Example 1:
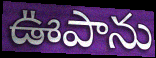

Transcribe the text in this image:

ఊపాను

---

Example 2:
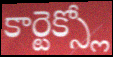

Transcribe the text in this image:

కార్టెక్స్లో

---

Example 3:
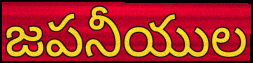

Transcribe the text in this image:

జపనీయుల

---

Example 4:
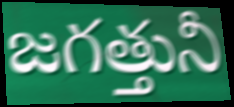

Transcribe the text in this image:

జగత్తునీ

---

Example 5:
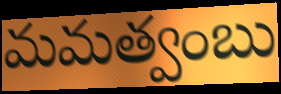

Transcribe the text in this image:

మమత్వంబు